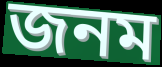
জনম